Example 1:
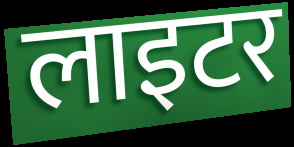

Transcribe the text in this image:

लाइटर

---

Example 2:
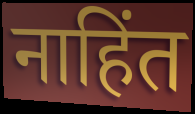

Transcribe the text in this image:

नाहिंत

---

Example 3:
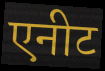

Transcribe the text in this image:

एनीट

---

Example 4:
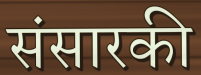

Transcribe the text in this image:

संसारकी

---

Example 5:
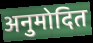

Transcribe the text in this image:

अनुमोदित